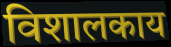
विशालकाय